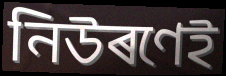
নিউৰণেই